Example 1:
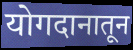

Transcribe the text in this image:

योगदानातून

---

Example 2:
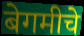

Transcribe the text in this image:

बेगमीचे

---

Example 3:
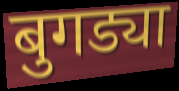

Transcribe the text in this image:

बुगड्या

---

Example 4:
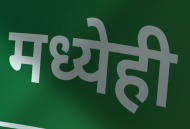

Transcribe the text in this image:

मध्येही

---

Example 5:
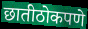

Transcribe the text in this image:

छातीठोकपणे